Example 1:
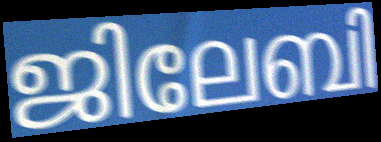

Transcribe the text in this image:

ജിലേബി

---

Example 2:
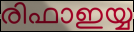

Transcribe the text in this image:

രിഫാഇയ്യ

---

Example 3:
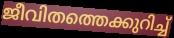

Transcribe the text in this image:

ജീവിതത്തെക്കുറിച്ച്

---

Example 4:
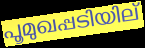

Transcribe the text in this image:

പൂമുഖപ്പടിയില്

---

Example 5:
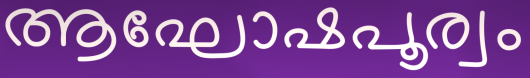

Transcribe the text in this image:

ആഘോഷപൂര്വം